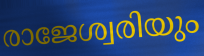
രാജേശ്വരിയും